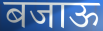
बजाऊ